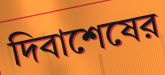
দিবাশেষের